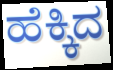
ಹೆಕ್ಕಿದ